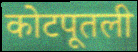
कोटपूतली